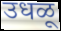
उधळू